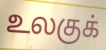
உலகுக்